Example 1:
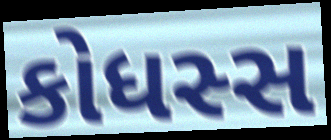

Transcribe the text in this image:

કોધસ્સ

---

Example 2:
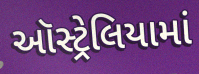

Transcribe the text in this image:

ઑસ્ટ્રેલિયામાં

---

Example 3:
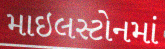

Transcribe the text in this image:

માઇલસ્ટોનમાં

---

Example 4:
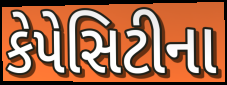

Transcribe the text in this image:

કેપેસિટીના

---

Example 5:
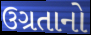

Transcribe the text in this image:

ઉગ્રતાનો